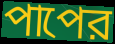
পাপের